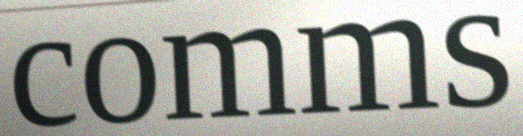
comms